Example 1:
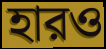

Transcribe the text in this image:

হারও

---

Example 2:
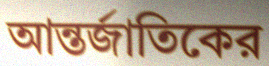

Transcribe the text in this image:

আন্তর্জাতিকের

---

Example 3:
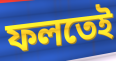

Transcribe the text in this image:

ফলতেই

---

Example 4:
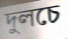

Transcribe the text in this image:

দুলচে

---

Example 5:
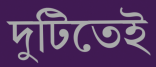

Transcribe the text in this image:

দুটিতেই